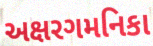
અક્ષરગમનિકા